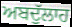
ਅਬਦੁੱਲਾਹ